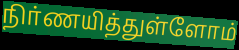
நிர்ணயித்துள்ளோம்